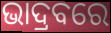
ଭାଦ୍ରବରେ